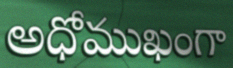
అధోముఖంగా